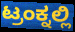
ಟ್ರಂಕ್ನಲ್ಲಿ